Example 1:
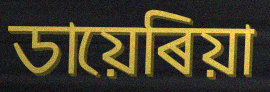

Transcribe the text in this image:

ডায়েৰিয়া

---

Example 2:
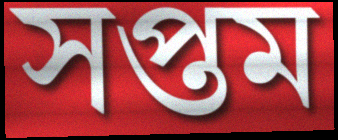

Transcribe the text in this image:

সপ্তম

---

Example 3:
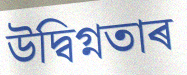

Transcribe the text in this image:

উদ্বিগ্নতাৰ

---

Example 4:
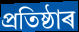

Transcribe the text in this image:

প্ৰতিষ্ঠাৰ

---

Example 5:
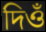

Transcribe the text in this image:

দিওঁ